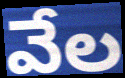
వేల